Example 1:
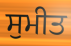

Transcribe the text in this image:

ਸੁਮੀਤ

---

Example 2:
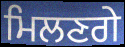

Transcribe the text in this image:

ਮਿਲਣਗੇ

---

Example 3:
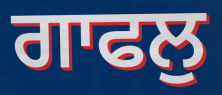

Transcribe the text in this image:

ਗਾਫਲੁ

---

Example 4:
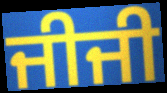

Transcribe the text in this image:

ਜੀਜੀ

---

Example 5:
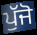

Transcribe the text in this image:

ਪੁੱਜੋ